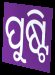
ପୁଷ୍ଟି